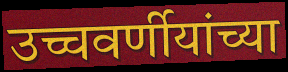
उच्चवर्णीयांच्या